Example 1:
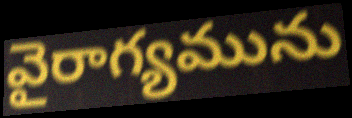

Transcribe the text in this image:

వైరాగ్యమును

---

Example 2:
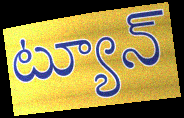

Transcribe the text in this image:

ట్యూన్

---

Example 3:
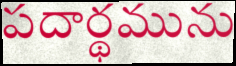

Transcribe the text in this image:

పదార్థమును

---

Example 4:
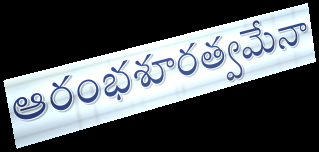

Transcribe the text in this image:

ఆరంభశూరత్వమేనా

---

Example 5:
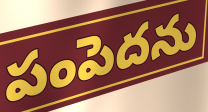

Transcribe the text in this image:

పంపెదను